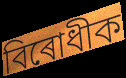
বিৰোধীক